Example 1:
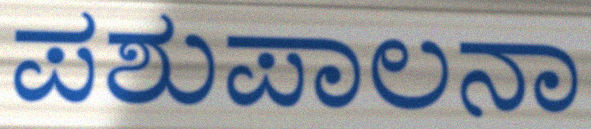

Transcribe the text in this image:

ಪಶುಪಾಲನಾ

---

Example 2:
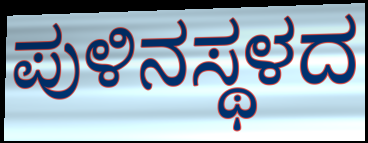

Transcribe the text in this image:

ಪುಳಿನಸ್ಥಳದ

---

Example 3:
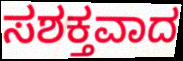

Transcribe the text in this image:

ಸಶಕ್ತವಾದ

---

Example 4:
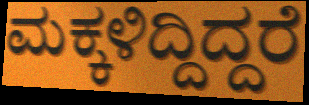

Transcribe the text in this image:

ಮಕ್ಕಳಿದ್ದಿದ್ದರೆ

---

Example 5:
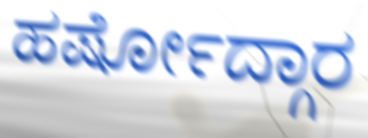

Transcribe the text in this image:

ಹರ್ಷೋದ್ಗಾರ